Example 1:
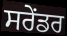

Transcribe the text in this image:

ਸਰੇਂਡਰ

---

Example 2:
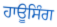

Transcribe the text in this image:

ਹਾਊਸਿੰਗ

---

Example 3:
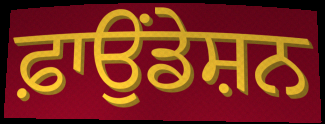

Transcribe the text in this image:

ਫ਼ਾਉਂਡੇਸ਼ਨ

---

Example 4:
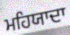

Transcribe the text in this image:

ਮਹਿਯਾਦਾ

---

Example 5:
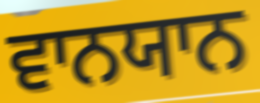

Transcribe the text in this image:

ਵਾਨਯਾਨ